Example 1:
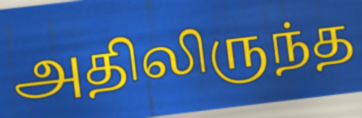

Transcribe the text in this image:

அதிலிருந்த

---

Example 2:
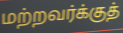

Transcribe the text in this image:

மற்றவர்க்குத்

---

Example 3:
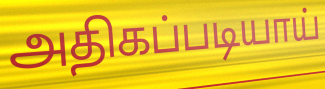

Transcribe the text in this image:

அதிகப்படியாய்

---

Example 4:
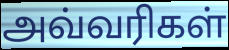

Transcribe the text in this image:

அவ்வரிகள்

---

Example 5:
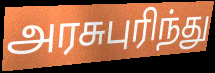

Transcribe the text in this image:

அரசுபுரிந்து